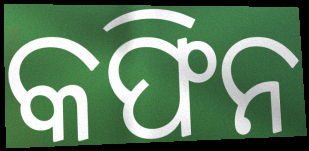
କଫିନ